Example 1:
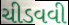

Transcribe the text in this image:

ચીડવવી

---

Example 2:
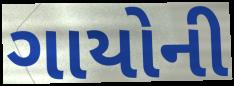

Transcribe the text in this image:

ગાયોની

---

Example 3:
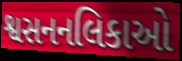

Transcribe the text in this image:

શ્વસનનલિકાઓ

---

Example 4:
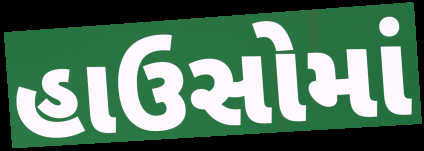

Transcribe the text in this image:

હાઉસોમાં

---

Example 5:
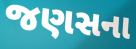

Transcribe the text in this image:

જણસના